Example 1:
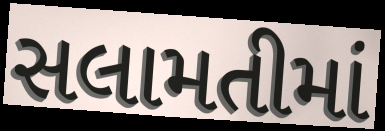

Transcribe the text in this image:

સલામતીમાં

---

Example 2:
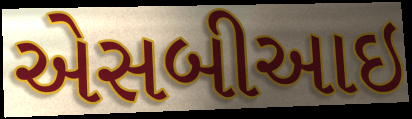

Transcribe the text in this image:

એસબીઆઇ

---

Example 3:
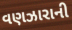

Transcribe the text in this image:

વણઝારાની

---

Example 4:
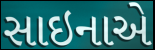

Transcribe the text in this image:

સાઇનાએ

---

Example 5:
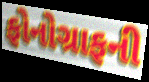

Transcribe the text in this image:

ફોનોગ્રાફની